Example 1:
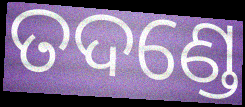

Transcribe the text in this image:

ତଦଣ୍ଡେ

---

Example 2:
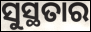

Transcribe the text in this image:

ସୁସ୍ଥତାର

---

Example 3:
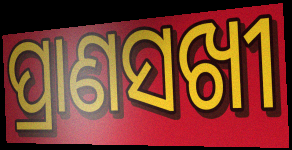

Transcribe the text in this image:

ପ୍ରାଣସଖୀ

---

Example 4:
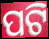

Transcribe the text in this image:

ପଟି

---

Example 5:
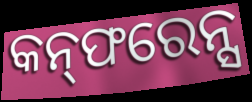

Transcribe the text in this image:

କନ୍‌ଫରେନ୍ସ